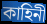
কাহিনী